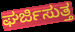
ಘರ್ಜಿಸುತ್ತ